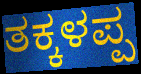
ತಕ್ಕಳಪ್ಪ